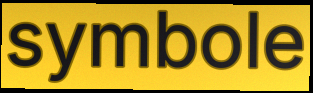
symbole